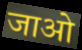
जाओ